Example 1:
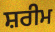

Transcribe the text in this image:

ਸ਼ਰੀਮ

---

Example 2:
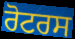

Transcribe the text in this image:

ਰੋਟਰਸ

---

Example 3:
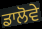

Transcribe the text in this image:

ਡਾਲੋਵੇ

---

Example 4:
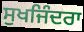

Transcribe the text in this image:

ਸੁਖਜਿੰਦਰਾ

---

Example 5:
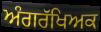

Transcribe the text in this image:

ਅੰਗਰੱਖਿਅਕ